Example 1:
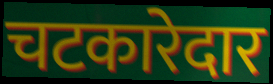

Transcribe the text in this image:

चटकारेदार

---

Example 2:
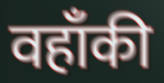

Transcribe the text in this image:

वहाँकी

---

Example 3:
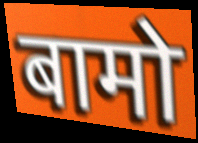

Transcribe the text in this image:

बामो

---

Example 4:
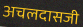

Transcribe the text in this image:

अचलदासजी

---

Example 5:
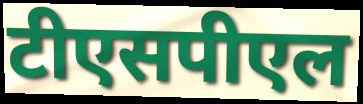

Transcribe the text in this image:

टीएसपीएल